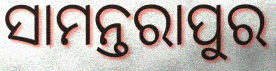
ସାମନ୍ତରାପୁର